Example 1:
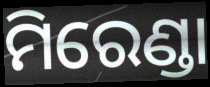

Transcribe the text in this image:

ମିରେଣ୍ଡା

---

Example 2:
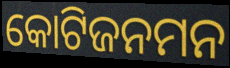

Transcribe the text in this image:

କୋଟିଜନମନ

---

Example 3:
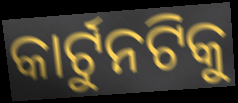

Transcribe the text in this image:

କାର୍ଟୁନଟିକୁ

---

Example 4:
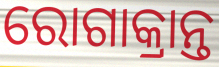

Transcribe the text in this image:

ରୋଗାକ୍ରାନ୍ତ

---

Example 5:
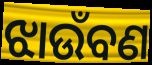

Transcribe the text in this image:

ଝାଉଁବଣ